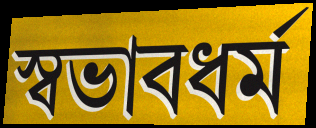
স্বভাবধর্ম